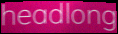
headlong